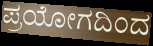
ಪ್ರಯೋಗದಿಂದ